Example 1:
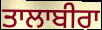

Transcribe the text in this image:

ਤਾਲਾਬੀਰਾ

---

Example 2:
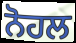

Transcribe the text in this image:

ਨੋਹਲ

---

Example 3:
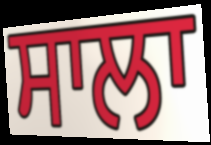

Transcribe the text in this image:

ਸਾਲਾ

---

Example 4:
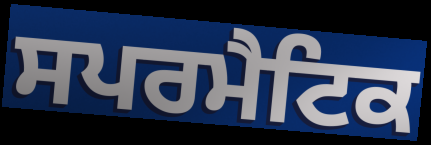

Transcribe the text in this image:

ਸਪਰਮੈਟਿਕ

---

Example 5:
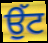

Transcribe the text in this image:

ਉੱਟ